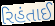
રિહંતાઈ